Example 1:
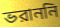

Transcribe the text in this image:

ভরাননি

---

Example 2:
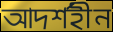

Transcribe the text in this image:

আদর্শহীন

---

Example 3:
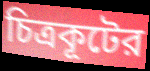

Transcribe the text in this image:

চিত্রকূটের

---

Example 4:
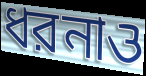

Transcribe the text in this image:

ধরনাও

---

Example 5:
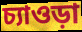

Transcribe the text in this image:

চ্যাওড়া